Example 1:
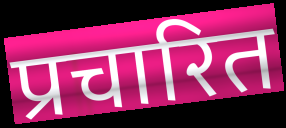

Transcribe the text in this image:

प्रचारित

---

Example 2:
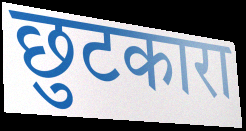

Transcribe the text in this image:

छुटकारा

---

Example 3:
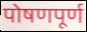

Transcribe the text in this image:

पोषणपूर्ण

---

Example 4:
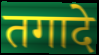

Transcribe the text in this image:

तगादे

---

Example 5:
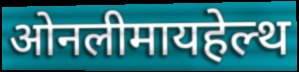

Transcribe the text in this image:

ओनलीमायहेल्थ